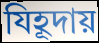
যিহূদায়